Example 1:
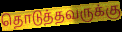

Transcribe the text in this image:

தொடுத்தவருக்கு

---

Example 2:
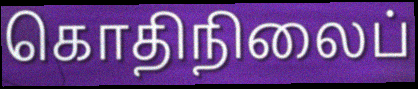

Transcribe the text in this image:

கொதிநிலைப்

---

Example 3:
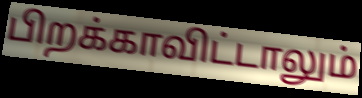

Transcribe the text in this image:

பிறக்காவிட்டாலும்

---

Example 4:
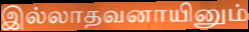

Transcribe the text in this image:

இல்லாதவனாயினும்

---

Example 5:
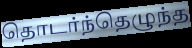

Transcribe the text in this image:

தொடர்ந்தெழுந்த